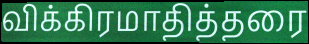
விக்கிரமாதித்தரை